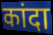
कांदा